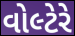
વોલ્ટેરે